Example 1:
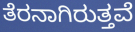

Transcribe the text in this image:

ತೆರನಾಗಿರುತ್ತವೆ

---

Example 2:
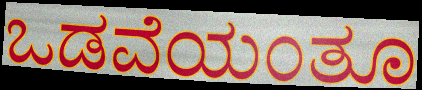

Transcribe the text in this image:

ಒಡವೆಯಂತೂ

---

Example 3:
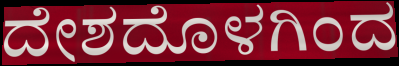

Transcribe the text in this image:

ದೇಶದೊಳಗಿಂದ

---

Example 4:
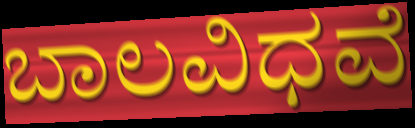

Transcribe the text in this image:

ಬಾಲವಿಧವೆ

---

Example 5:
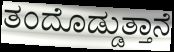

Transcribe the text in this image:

ತಂದೊಡ್ಡುತ್ತಾನೆ